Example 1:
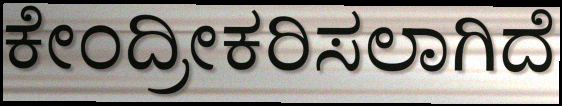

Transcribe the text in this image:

ಕೇಂದ್ರೀಕರಿಸಲಾಗಿದೆ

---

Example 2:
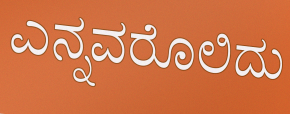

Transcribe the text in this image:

ಎನ್ನವರೊಲಿದು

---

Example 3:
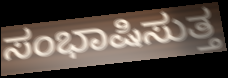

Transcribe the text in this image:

ಸಂಭಾಷಿಸುತ್ತ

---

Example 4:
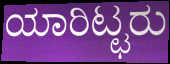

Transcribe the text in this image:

ಯಾರಿಟ್ಟರು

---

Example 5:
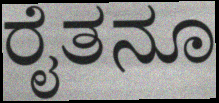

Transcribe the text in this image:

ರೈತನೂ